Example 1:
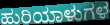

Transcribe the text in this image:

ಹುರಿಯಾಳುಗಳ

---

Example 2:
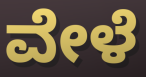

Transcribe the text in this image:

ವೇಳೆ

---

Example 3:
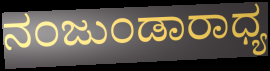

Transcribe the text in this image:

ನಂಜುಂಡಾರಾಧ್ಯ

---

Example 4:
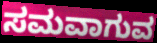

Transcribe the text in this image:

ಸಮವಾಗುವ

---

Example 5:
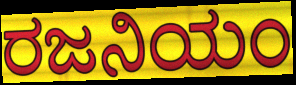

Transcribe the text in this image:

ರಜನಿಯಂ